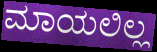
ಮಾಯಲಿಲ್ಲ